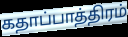
கதாப்பாத்திரம்